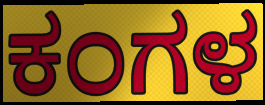
ಕಂಗಳ